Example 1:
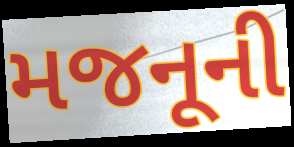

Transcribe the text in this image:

મજનૂની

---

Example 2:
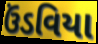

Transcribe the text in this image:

ઉંડવિયા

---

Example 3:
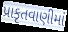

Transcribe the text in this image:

પ્રાકૃતવાણીમાં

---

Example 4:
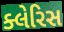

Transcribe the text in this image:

ક્લેરિસ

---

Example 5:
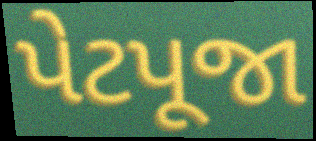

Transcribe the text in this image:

પેટપૂજા